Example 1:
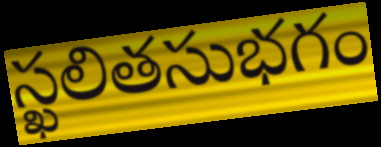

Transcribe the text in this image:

స్ఖలితసుభగం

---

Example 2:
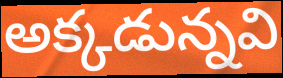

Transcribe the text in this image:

అక్కడున్నవి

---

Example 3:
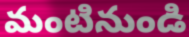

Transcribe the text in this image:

మంటినుండి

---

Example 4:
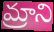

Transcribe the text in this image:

మ్రాని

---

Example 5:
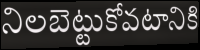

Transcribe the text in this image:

నిలబెట్టుకోవటానికి